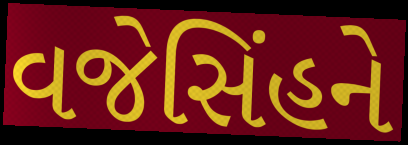
વજેસિંહને